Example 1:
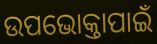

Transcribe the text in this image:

ଉପଭୋକ୍ତାପାଇଁ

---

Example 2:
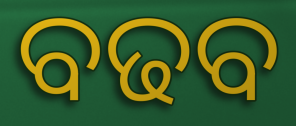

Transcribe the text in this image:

ବଢବ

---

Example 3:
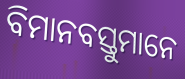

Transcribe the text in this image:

ବିମାନବସ୍ତୁମାନେ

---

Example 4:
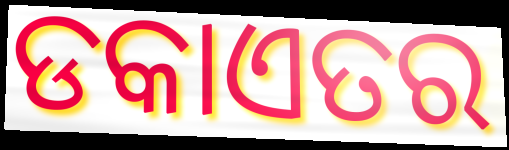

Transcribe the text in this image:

ଡକାଏତର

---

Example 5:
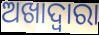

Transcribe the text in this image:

ଅଖାଦ୍ୱାରା